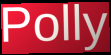
Polly